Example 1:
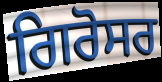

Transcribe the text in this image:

ਗਿਰੋਸਰ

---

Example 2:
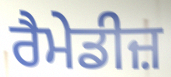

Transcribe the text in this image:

ਰੈਮੇਡੀਜ਼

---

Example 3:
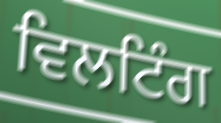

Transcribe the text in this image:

ਵਿਲਟਿੰਗ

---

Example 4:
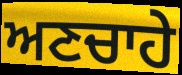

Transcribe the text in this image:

ਅਣਚਾਹੇ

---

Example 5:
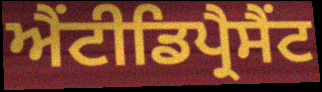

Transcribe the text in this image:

ਐਂਟੀਡਿਪ੍ਰੈਸੈਂਟ